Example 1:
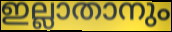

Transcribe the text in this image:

ഇല്ലാതാനും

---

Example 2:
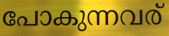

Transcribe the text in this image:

പോകുന്നവര്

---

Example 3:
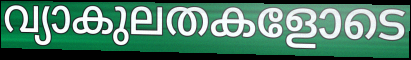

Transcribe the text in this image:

വ്യാകുലതകളോടെ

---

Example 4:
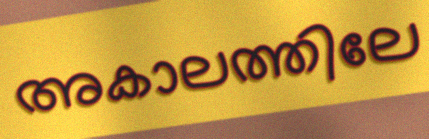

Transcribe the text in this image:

അകാലത്തിലേ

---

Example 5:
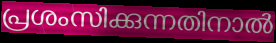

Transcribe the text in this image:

പ്രശംസിക്കുന്നതിനാൽ